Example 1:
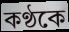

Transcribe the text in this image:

কণ্ঠকে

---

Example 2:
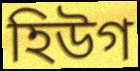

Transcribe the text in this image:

হিউগ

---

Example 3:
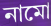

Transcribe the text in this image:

নামো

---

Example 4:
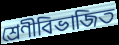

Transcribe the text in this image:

শ্রেণীবিভাজিত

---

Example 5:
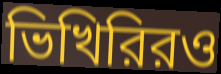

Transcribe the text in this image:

ভিখিরিরও